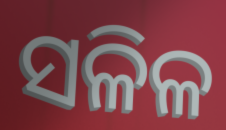
ସଳିଳ